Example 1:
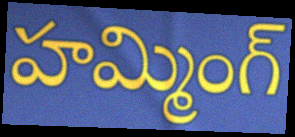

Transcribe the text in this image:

హమ్మింగ్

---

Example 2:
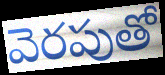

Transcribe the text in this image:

వెరపుతో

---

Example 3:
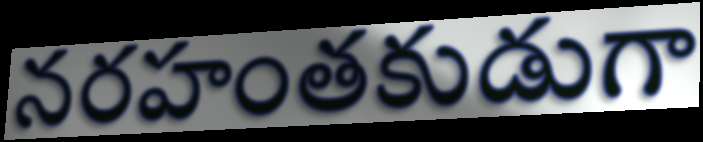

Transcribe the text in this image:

నరహంతకుడుగా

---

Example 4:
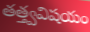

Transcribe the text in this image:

తత్త్వవిషయం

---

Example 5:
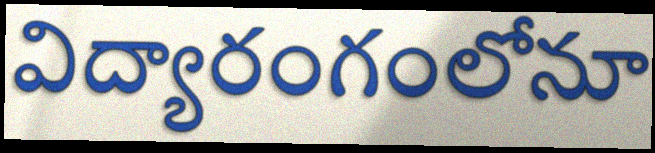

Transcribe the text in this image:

విద్యారంగంలోనూ